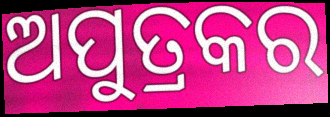
ଅପୁତ୍ରକର